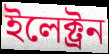
ইলেক্ট্ৰন